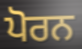
ਪੋਰਨ